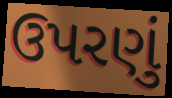
ઉપરણું